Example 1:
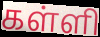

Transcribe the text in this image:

கள்ளி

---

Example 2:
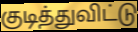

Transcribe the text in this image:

குடித்துவிட்டு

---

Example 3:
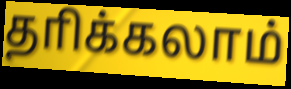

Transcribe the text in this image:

தரிக்கலாம்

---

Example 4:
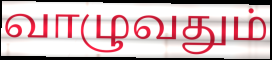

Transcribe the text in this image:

வாழுவதும்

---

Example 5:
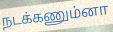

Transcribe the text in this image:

நடக்கணும்னா